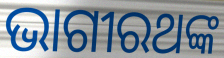
ଭାଗୀରଥଙ୍କ